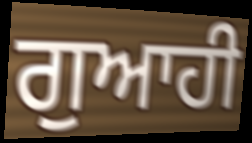
ਗੁਆਹੀ